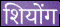
शियोंग